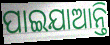
ପାଇଯାଆନ୍ତି